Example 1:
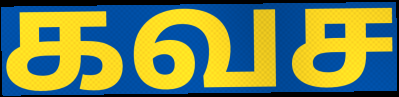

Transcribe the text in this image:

கவச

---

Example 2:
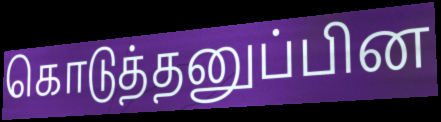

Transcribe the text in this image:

கொடுத்தனுப்பின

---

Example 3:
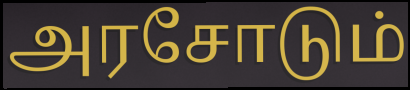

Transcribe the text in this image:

அரசோடும்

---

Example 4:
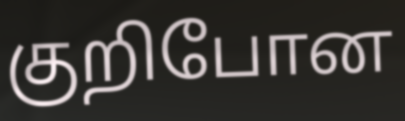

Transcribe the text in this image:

குறிபோன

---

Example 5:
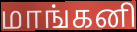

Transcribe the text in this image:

மாங்கனி